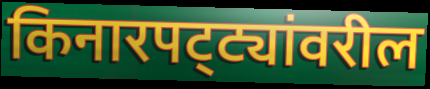
किनारपट्ट्यांवरील